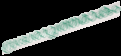
സ്രഗ്ദ്ധരാവൃത്തമാകും